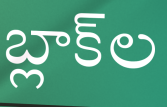
బ్లాక్‌ల